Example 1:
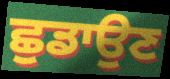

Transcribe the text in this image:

ਛੁਡਾਉਣ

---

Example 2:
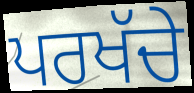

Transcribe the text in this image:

ਪਰਖੱਚੇ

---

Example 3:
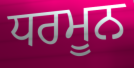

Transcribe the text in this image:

ਧਰਮੂਨ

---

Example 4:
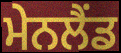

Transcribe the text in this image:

ਮੇਨਲੈਂਡ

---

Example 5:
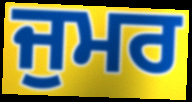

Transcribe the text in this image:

ਜੁਮਰ